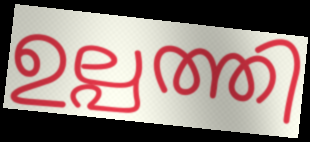
ഉല്പത്തി